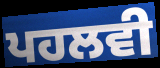
ਪਹਲਵੀ